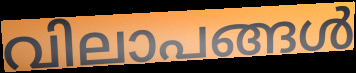
വിലാപങ്ങൾ